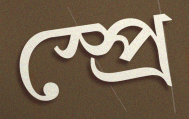
স্প্রে